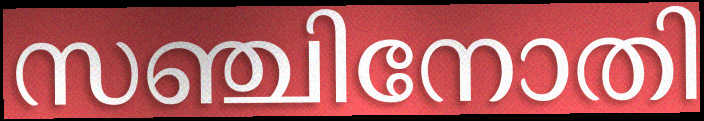
സഞ്ചിനോതി